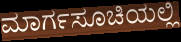
ಮಾರ್ಗಸೂಚಿಯಲ್ಲಿ